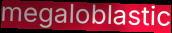
megaloblastic